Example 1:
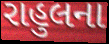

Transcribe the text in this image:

રાહુલના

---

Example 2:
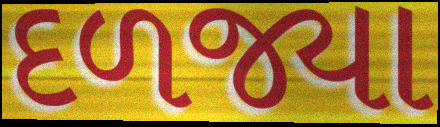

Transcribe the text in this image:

દળજ્યા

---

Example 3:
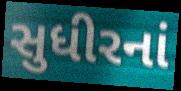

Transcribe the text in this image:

સુધીરનાં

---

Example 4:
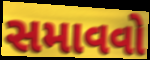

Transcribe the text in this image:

સમાવવો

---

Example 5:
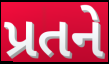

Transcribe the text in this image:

પ્રતને